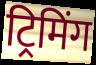
ट्रिमिंग